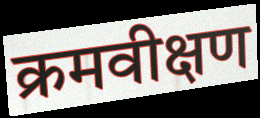
क्रमवीक्षण